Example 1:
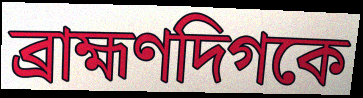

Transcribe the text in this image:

ব্রাহ্মণদিগকে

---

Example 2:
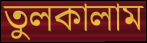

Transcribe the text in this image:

তুলকালাম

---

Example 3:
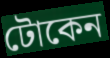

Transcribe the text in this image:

টোকেন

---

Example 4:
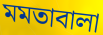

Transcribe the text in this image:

মমতাবালা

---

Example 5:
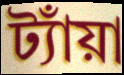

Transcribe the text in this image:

ট্যাঁয়া